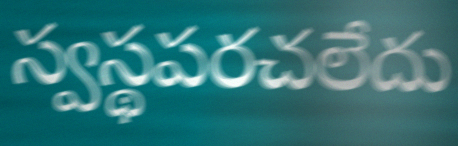
స్వస్థపరచలేదు